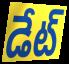
డేట్